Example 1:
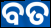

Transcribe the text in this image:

ବତ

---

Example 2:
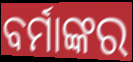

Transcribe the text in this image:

ବର୍ମାଙ୍କର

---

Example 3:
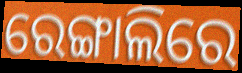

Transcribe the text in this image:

ରେଙ୍ଗାଲିରେ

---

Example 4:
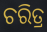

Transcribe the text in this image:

ଚରିତ୍ର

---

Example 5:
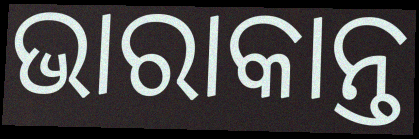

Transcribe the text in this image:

ଭାରାକାନ୍ତ